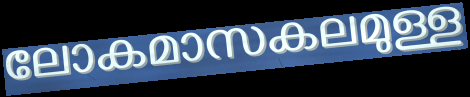
ലോകമാസകലമുള്ള